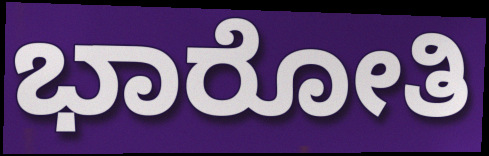
ಭಾರೋತಿ